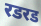
रडरड